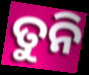
ତୁନି